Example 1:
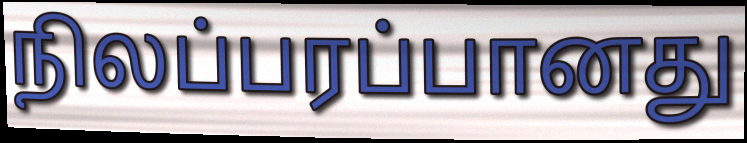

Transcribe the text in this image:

நிலப்பரப்பானது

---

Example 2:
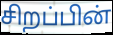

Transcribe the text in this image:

சிறப்பின்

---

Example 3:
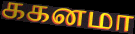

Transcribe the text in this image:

ககனமா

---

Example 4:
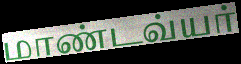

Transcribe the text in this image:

மாண்டவ்யர்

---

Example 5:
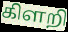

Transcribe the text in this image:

கிளறி